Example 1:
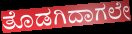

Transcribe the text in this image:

ತೊಡಗಿದಾಗಲೇ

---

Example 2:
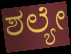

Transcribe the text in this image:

ಶಲ್ಯೇ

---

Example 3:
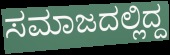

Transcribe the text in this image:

ಸಮಾಜದಲ್ಲಿದ್ದ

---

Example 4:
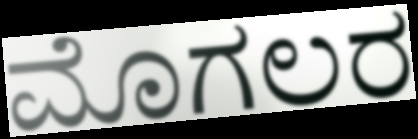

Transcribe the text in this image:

ಮೊಗಲರ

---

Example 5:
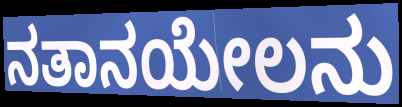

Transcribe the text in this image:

ನತಾನಯೇಲನು